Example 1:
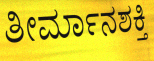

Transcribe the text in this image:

ತೀರ್ಮಾನಶಕ್ತಿ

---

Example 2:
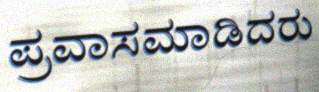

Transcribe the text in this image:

ಪ್ರವಾಸಮಾಡಿದರು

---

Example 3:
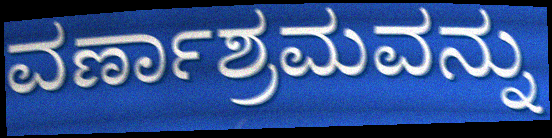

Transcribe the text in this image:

ವರ್ಣಾಶ್ರಮವನ್ನು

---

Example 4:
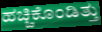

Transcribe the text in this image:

ಹಚ್ಚಿಕೊಂಡಿತ್ತು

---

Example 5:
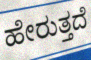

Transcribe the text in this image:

ಹೇರುತ್ತದೆ